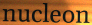
nucleon